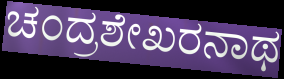
ಚಂದ್ರಶೇಖರನಾಥ